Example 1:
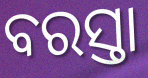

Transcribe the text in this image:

ବରସ୍ତା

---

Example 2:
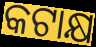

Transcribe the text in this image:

କଟାକ୍ଷ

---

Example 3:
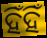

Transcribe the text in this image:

ହିଁହିଁ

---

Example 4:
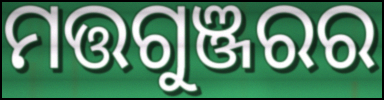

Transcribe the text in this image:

ମତ୍ତଗୁଞ୍ଜରର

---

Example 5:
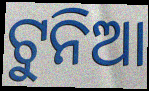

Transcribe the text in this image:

ଟୁନିଆ